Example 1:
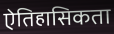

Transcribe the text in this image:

ऐतिहासिकता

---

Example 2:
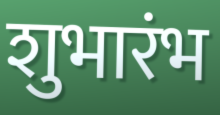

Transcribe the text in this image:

शुभारंभ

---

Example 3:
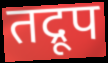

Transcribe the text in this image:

तद्रूप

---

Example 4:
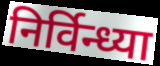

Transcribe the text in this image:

निर्विन्ध्या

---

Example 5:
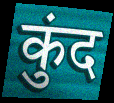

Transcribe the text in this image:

कुंद